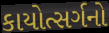
કાયોત્સર્ગનો